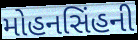
મોહનસિંહની